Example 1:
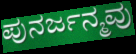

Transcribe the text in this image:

ಪುನರ್ಜನ್ಮವು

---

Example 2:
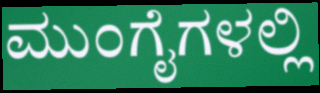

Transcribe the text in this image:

ಮುಂಗೈಗಳಲ್ಲಿ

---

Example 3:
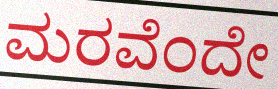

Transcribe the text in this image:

ಮರವೆಂದೇ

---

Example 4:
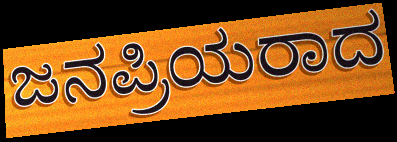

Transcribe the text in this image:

ಜನಪ್ರಿಯರಾದ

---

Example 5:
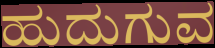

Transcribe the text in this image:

ಹುದುಗುವ